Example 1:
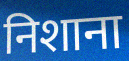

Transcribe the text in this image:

निशाना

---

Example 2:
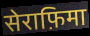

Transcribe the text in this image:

सेराफ़िमा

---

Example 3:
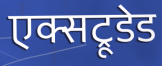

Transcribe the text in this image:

एक्सट्रूडेड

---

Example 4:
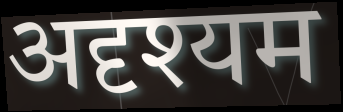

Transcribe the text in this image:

अदृश्यम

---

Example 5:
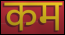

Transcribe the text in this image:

कम